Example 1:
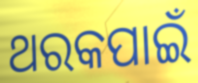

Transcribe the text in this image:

ଥରକପାଇଁ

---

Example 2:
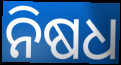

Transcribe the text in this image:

ନିଷଧ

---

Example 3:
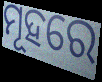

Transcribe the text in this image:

ମୂହରେ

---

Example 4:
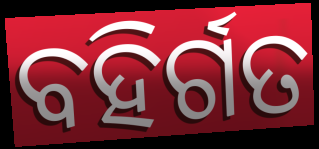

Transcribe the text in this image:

ବହିର୍ଗତ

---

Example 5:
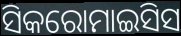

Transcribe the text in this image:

ସିକରୋମାଇସିସ